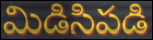
మిడిసిపడి